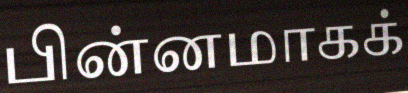
பின்னமாகக்